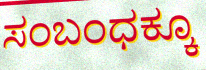
ಸಂಬಂಧಕ್ಕೂ